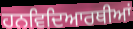
ਹਨਵਿਦਿਆਰਥੀਆਂ